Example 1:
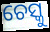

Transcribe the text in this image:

ଚେସ୍କୁ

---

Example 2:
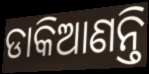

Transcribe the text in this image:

ଡାକିଆଣନ୍ତି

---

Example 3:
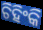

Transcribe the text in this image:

ଚିହିଂକି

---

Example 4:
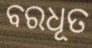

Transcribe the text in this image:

ବରଧୂତ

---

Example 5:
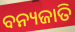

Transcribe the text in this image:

ବନ୍ୟଜାତି